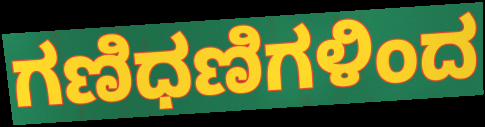
ಗಣಿಧಣಿಗಳಿಂದ